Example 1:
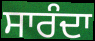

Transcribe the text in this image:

ਸਾਰੰਦਾ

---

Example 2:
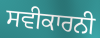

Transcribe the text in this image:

ਸਵੀਕਾਰਨੀ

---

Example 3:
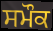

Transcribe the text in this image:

ਸਮੌਕ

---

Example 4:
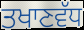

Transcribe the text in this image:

ਤਖਾਣਵੱਧ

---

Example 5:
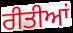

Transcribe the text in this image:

ਰੀਤੀਆਂ